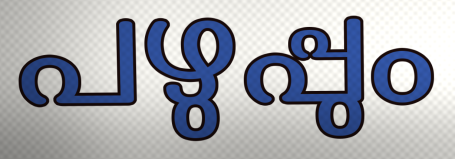
പഴുപ്പും